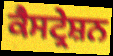
ਕੈਸਟ੍ਰੇਸ਼ਨ